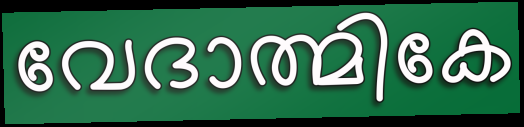
വേദാത്മികേ